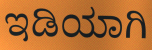
ಇಡಿಯಾಗಿ